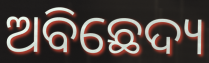
ଅବିଛେଦ୍ୟ